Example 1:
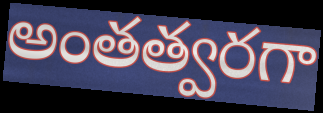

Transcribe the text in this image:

అంతత్వరగా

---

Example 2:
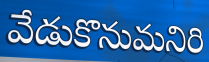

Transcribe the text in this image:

వేడుకొనుమనిరి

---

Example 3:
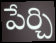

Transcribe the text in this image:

పేర్చి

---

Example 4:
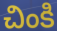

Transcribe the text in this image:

చింకి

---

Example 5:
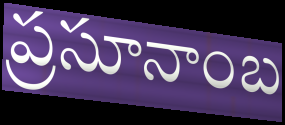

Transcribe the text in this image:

ప్రసూనాంబ